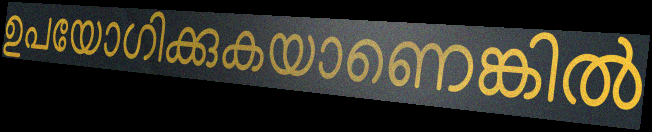
ഉപയോഗിക്കുകയാണെങ്കിൽ